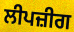
ਲੀਪਜ਼ੀਗ